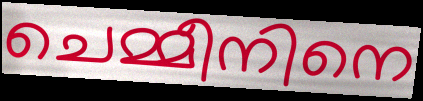
ചെമ്മീനിനെ